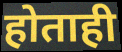
होताही